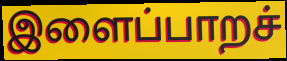
இளைப்பாறச்